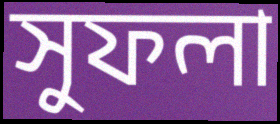
সুফলা